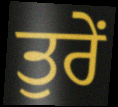
ਤੁਰੇਂ